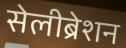
सेलीब्रेशन